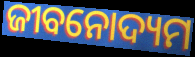
ଜୀବନୋଦ୍ୟମ